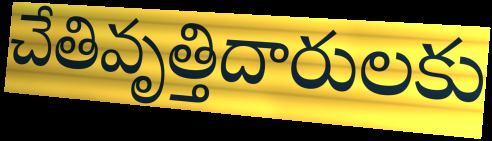
చేతివృత్తిదారులకు